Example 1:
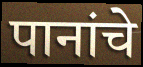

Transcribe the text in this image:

पानांचे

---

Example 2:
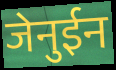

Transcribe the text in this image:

जेनुईन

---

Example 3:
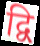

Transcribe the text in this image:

द्वि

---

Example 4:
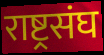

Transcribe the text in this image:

राष्ट्रसंघ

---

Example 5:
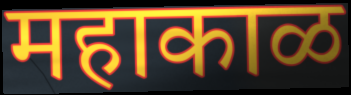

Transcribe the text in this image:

महाकाळ